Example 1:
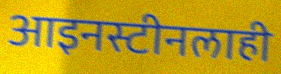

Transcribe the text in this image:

आइनस्टीनलाही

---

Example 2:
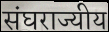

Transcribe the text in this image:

संघराज्यीय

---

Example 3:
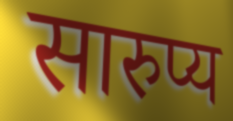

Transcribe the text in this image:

सारुप्य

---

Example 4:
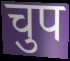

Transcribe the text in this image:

चुप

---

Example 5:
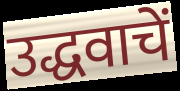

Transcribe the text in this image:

उद्धवाचें